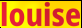
louise